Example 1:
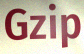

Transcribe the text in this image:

Gzip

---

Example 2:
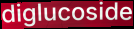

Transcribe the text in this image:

diglucoside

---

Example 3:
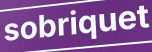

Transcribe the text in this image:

sobriquet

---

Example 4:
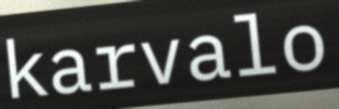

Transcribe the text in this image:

karvalo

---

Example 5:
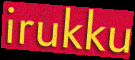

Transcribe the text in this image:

irukku